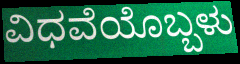
ವಿಧವೆಯೊಬ್ಬಳು